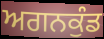
ਅਗਨਕੁੰਡ